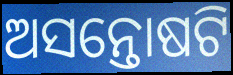
ଅସନ୍ତୋଷଟି